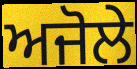
ਅਜੋਲੇ